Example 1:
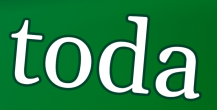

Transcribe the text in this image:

toda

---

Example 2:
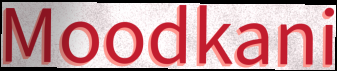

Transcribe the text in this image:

Moodkani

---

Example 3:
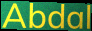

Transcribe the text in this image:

Abdal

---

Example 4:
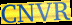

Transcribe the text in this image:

CNVR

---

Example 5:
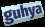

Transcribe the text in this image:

guhya